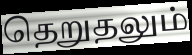
தெறுதலும்